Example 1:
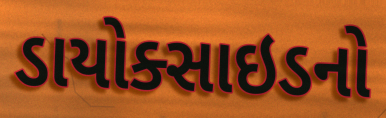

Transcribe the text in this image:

ડાયોક્સાઇડનો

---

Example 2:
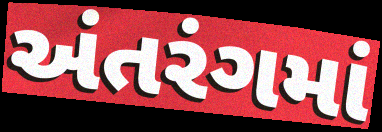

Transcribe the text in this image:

અંતરંગમાં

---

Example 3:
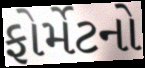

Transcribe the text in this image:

ફોર્મેટનો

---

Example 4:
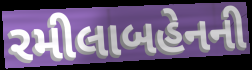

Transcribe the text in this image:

રમીલાબહેનની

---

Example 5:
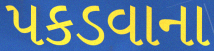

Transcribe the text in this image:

પકડવાના